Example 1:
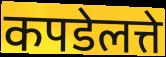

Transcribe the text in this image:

कपडेलत्ते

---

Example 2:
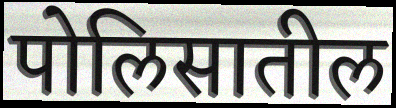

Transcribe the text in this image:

पोलिसातील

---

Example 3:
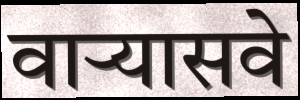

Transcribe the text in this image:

वाऱ्यासवे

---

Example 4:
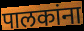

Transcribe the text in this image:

पालकांना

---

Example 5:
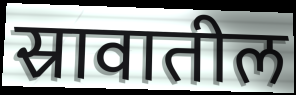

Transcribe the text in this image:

स्रावातील